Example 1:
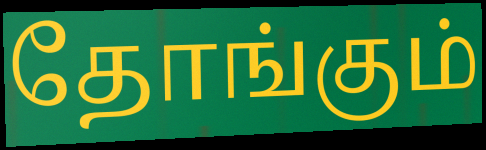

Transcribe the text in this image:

தோங்கும்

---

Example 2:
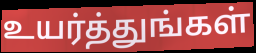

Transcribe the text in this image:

உயர்த்துங்கள்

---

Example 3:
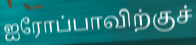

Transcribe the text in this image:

ஐரோப்பாவிற்குச்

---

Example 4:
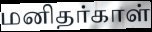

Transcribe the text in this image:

மனிதர்காள்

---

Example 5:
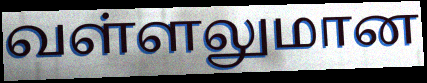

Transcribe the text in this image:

வள்ளலுமான